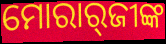
ମୋରାର୍‌ଜୀଙ୍କ